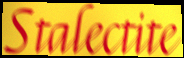
Stalectite